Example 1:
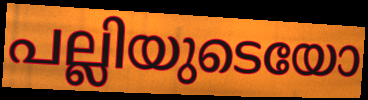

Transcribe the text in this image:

പല്ലിയുടെയോ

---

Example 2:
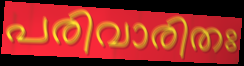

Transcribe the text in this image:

പരിവാരിതഃ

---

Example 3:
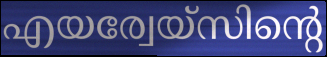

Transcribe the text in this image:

എയര്വേയ്സിന്റെ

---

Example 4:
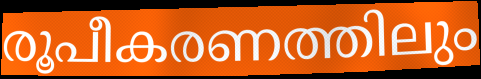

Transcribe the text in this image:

രൂപീകരണത്തിലും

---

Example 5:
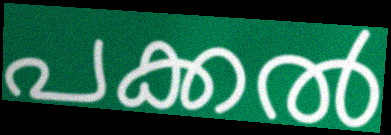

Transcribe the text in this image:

പക്കൽ